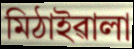
মিঠাইৱালা